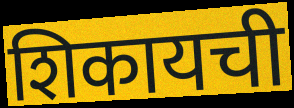
शिकायची